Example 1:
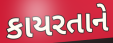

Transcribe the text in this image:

કાયરતાને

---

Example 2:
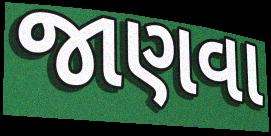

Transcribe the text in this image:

જાણવા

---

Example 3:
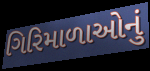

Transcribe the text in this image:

ગિરિમાળાઓનું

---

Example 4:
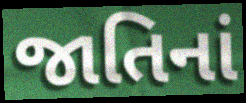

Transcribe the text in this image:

જાતિનાં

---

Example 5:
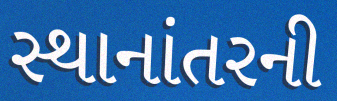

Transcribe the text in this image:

સ્થાનાંતરની